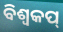
ବିଶ୍ୱକପ୍